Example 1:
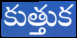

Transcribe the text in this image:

కుత్తుక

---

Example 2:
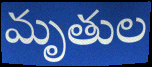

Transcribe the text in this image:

మృతుల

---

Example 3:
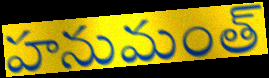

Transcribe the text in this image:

హనుమంత్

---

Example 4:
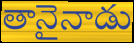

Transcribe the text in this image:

తానైనాడు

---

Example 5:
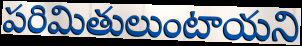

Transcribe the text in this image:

పరిమితులుంటాయని